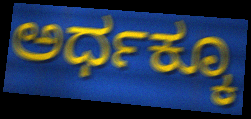
ಅರ್ಧಕ್ಕೂ